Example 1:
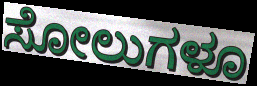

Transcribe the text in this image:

ಸೋಲುಗಳೂ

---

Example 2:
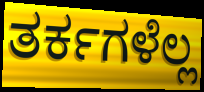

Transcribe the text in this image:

ತರ್ಕಗಳೆಲ್ಲ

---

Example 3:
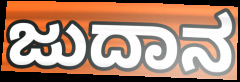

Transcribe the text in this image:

ಜುದಾನ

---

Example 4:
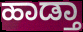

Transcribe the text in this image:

ಹಾಡ್ತಾ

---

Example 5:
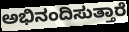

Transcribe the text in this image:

ಅಭಿನಂದಿಸುತ್ತಾರೆ